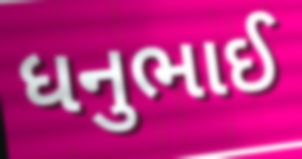
ધનુભાઈ